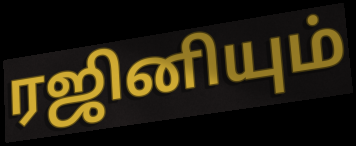
ரஜினியும்